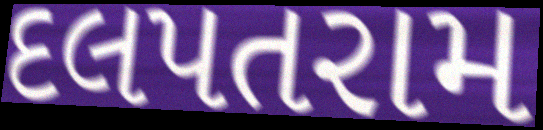
દલપતરામ